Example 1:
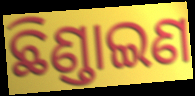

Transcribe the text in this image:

ଛିଣ୍ଡାଇଣ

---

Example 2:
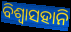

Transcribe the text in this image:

ବିଶ୍ବାସହାନି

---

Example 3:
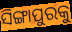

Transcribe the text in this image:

ସିଙ୍ଗାପୁରକୁ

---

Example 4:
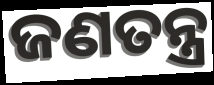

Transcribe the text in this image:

ଜଣତନ୍ତ୍ର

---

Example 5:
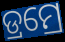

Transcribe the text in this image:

ଡ୍ରମ୍ରେ